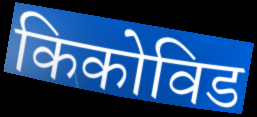
किकोविड